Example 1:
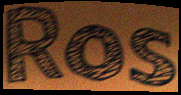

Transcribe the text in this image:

Ros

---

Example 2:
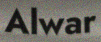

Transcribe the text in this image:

Alwar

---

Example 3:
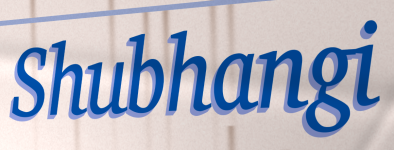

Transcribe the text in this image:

Shubhangi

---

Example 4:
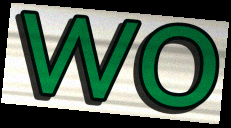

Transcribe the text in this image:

WO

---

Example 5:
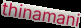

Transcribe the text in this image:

thinamani